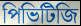
পিভিটিজি